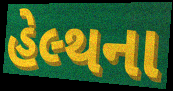
હેલ્થના